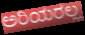
ಅರಿಯರಲ್ಲ